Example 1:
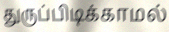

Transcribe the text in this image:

துருப்பிடிக்காமல்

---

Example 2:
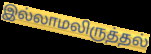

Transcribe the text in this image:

இல்லாமலிருத்தல்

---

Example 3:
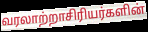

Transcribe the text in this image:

வரலாற்றாசிரியர்களின்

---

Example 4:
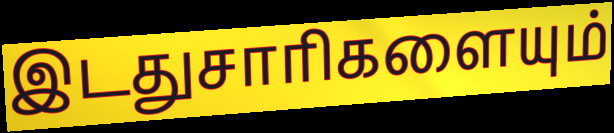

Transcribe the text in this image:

இடதுசாரிகளையும்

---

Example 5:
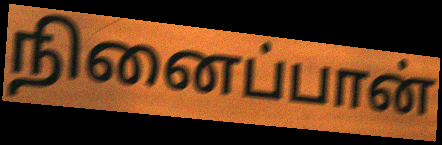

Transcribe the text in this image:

நினைப்பான்